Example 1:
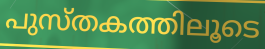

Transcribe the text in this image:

പുസ്തകത്തിലൂടെ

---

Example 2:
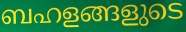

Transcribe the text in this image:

ബഹളങ്ങളുടെ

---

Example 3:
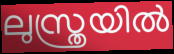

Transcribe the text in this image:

ലുസ്ത്രയിൽ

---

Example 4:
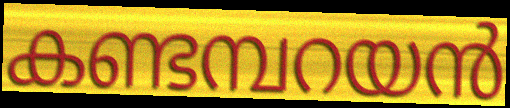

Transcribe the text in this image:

കണ്ടമ്പറയൻ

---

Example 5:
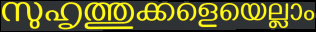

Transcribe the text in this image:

സുഹൃത്തുക്കളെയെല്ലാം